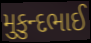
મુકુન્દભાઈ